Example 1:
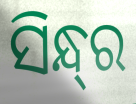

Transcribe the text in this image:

ସିନ୍ଧ୍‌ର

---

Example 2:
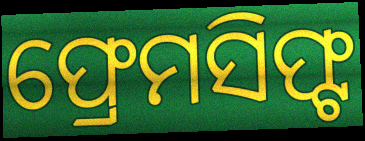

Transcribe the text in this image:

ଫ୍ରେମସିଫ୍ଟ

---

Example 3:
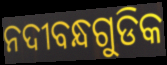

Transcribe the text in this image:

ନଦୀବନ୍ଧଗୁଡିକ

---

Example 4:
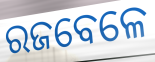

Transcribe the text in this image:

ରଜବେଳେ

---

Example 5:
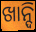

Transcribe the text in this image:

ଖାନ୍ଦି